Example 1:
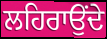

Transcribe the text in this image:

ਲਹਿਰਾਉਂਦੇ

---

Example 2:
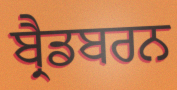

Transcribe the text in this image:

ਬ੍ਰੈਡਬਰਨ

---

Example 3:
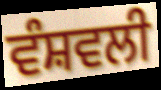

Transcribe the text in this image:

ਵੰਸ਼ਵਲੀ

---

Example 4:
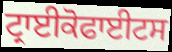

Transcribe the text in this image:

ਟ੍ਰਾਈਕੋਫਾਈਟਸ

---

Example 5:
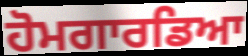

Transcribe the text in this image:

ਹੋਮਗਾਰਡਿਆ